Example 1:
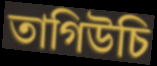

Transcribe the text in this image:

তাগিউচি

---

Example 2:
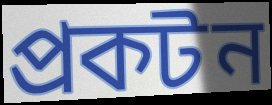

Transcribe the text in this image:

প্রকটন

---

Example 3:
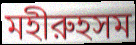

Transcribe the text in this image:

মহীরুহসম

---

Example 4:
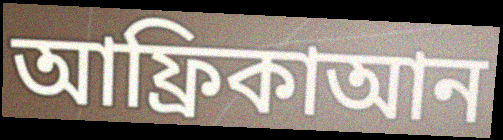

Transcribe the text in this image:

আফ্রিকাআন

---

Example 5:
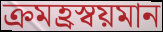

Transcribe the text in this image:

ক্রমহ্রস্বয়মান